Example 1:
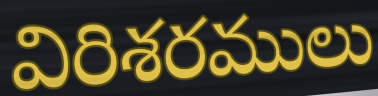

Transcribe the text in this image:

విరిశరములు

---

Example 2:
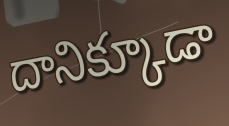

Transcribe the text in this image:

దానిక్కూడా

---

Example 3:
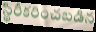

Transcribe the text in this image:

స్థిరీకరించబడిన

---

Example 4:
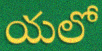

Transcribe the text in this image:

యలో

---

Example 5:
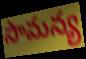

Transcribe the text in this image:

సామన్య